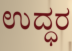
ಉದ್ಧರ